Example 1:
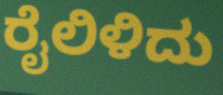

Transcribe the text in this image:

ರೈಲಿಳಿದು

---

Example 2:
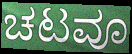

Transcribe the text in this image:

ಚಟವೂ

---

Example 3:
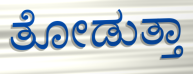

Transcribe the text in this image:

ತೋಡುತ್ತಾ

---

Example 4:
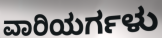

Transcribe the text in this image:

ವಾರಿಯರ್ಗಳು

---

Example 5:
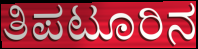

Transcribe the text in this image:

ತಿಪಟೂರಿನ